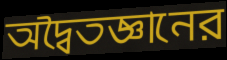
অদ্বৈতজ্ঞানের